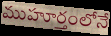
ముహూర్తంలోనే